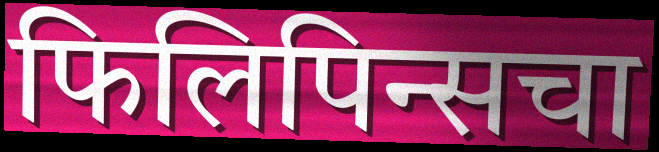
फिलिपिन्सचा